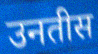
उनतीस